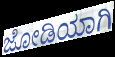
ಜೋಡಿಯಾಗಿ